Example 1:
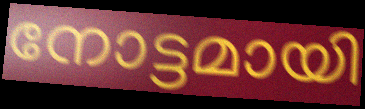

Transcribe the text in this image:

നോട്ടമായി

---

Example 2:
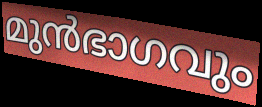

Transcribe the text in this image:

മുൻഭാഗവും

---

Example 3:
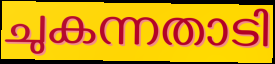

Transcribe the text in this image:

ചുകന്നതാടി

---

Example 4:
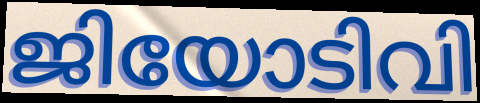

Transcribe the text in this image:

ജിയോടിവി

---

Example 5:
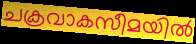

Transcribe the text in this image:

ചക്രവാകസീമയിൽ